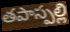
తపాస్పల్లి